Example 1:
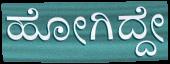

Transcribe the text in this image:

ಹೋಗಿದ್ದೇ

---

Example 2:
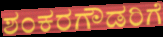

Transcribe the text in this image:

ಶಂಕರಗೌಡರಿಗೆ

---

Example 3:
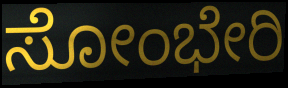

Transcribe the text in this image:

ಸೋಂಭೇರಿ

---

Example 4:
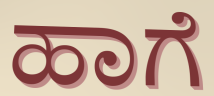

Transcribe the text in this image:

ಹಾಗೆ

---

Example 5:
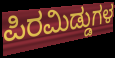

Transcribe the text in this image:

ಪಿರಮಿಡ್ಡುಗಳ